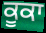
ਕੂਕਾ